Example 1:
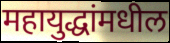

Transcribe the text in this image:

महायुद्धांमधील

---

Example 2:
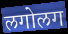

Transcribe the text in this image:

लगोलग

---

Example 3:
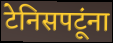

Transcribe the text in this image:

टेनिसपटूंना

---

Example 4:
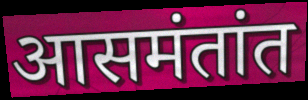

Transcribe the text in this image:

आसमंतांत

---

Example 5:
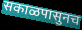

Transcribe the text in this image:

सकाळपासुनच